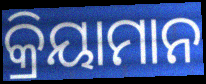
କ୍ରିୟାମାନ